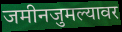
जमीनजुमल्यावर